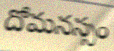
దోమనస్సం